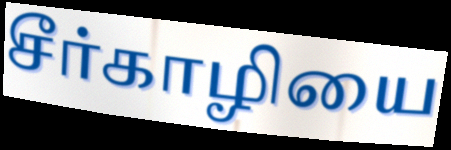
சீர்காழியை